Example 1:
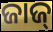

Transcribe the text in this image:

ଜାଜ୍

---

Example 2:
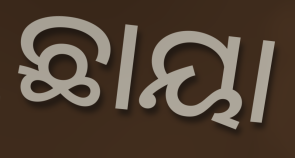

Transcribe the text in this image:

ଛାୟା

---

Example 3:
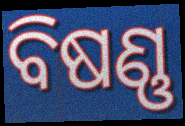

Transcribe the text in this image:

ବିଷଣ୍ଣ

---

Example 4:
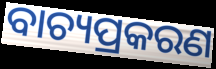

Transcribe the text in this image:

ବାଚ୍ୟପ୍ରକରଣ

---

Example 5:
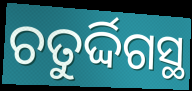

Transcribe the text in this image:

ଚତୁର୍ଦ୍ଦିଗସ୍ଥ